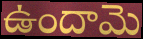
ఉందామె